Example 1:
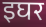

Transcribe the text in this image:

इघर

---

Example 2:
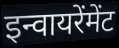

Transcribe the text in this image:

इन्वायरेंमेंट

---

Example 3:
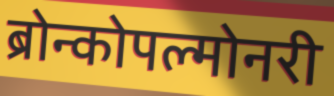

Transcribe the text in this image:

ब्रोन्कोपल्मोनरी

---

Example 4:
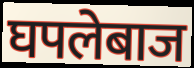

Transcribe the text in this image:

घपलेबाज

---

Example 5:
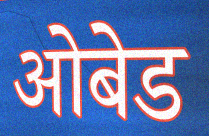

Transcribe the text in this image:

ओबेड